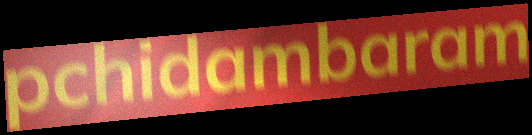
pchidambaram